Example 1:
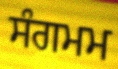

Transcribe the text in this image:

ਸੰਗਮਮ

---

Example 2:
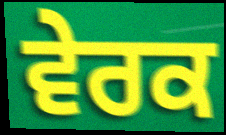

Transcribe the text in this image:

ਵੇਰਕ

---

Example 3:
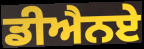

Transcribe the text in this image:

ਡੀਐਨਏ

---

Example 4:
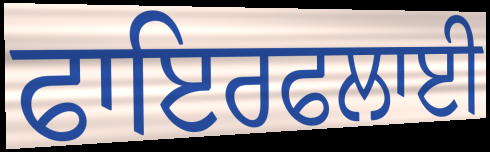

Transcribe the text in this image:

ਫਾਇਰਫਲਾਈ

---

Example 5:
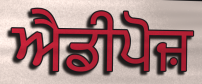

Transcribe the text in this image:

ਐਡੀਪੋਜ਼